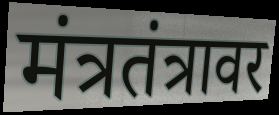
मंत्रतंत्रावर